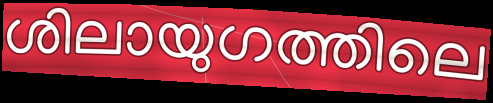
ശിലായുഗത്തിലെ